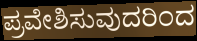
ಪ್ರವೇಶಿಸುವುದರಿಂದ